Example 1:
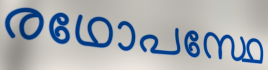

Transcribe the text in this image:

രഥോപസ്ഥേ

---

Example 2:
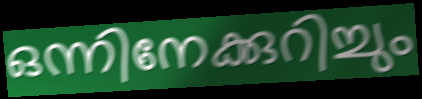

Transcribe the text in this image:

ഒന്നിനേക്കുറിച്ചും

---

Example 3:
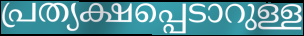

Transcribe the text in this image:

പ്രത്യക്ഷപ്പെടാറുള്ള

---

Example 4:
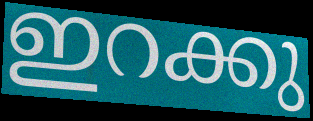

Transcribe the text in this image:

ഇറക്കു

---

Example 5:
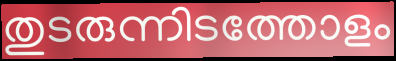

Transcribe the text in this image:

തുടരുന്നിടത്തോളം